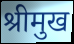
श्रीमुख